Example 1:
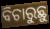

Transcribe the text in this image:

ବିଚାରୁଛୁ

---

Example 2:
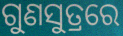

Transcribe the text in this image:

ଗୁଣସୁତ୍ରରେ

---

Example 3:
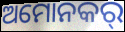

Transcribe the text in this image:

ଅମୋନକର୍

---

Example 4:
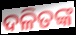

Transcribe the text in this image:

ଦଳିତଙ୍କ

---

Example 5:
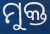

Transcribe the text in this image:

ମୁକ୍ତ